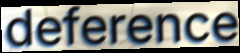
deference